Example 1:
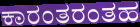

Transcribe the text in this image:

ಕಾರಂತರಂತಹ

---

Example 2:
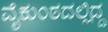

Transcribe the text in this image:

ವೈಕುಂಠದಲ್ಲಿದ್ದ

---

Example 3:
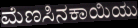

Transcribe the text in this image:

ಮೆಣಸಿನಕಾಯಿಯು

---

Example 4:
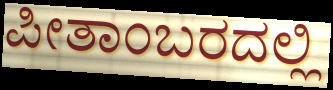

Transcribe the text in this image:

ಪೀತಾಂಬರದಲ್ಲಿ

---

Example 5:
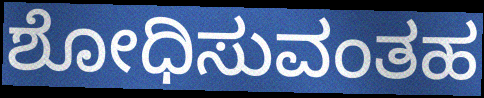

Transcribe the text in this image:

ಶೋಧಿಸುವಂತಹ